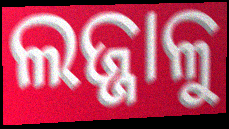
ଲଜ୍ଜାଳୁ